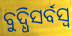
ବୁଦ୍ଧିସର୍ବସ୍ୱ